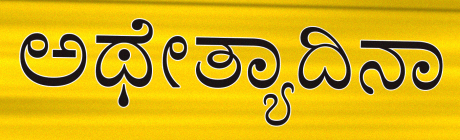
ಅಥೇತ್ಯಾದಿನಾ